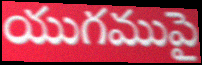
యుగముపై